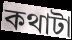
কথাটা